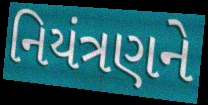
નિયંત્રણને